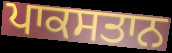
ਪਾਕਸਤਾਨ